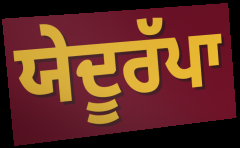
ਯੇਦੂਰੱਪਾ